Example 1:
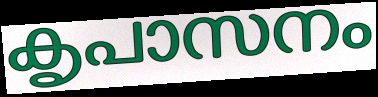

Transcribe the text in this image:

കൃപാസനം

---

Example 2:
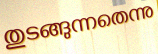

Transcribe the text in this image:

തുടങ്ങുന്നതെന്നു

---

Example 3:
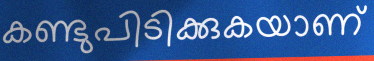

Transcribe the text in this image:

കണ്ടുപിടിക്കുകയാണ്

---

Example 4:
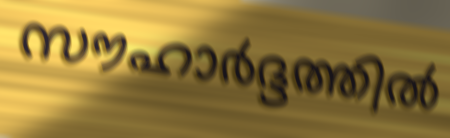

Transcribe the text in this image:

സൗഹാർദ്ദത്തിൽ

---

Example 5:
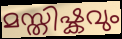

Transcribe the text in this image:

മസ്തിഷ്കവും